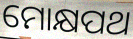
ମୋକ୍ଷପଥ